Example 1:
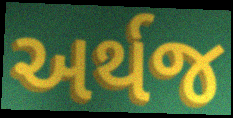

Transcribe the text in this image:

અર્થજ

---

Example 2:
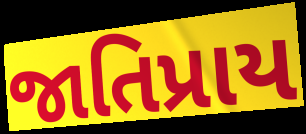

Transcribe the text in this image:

જાતિપ્રાય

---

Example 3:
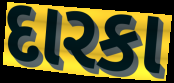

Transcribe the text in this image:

દારકા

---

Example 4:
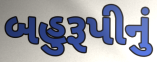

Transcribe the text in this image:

બહુરૂપીનું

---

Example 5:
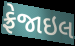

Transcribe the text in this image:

ફ્રેજાઇલ